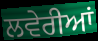
ਲਵੇਰੀਆਂ